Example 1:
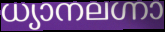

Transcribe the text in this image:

ധ്യാനലഗ്നാ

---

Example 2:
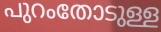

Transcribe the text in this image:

പുറംതോടുള്ള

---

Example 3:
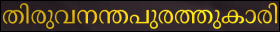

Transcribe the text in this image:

തിരുവനന്തപുരത്തുകാരി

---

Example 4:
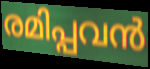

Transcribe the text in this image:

രമിപ്പവൻ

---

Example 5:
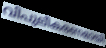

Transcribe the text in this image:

വിപുലീകരണമായി